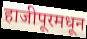
हाजीपूरमधून